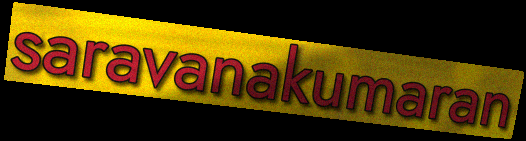
saravanakumaran